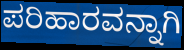
ಪರಿಹಾರವನ್ನಾಗಿ